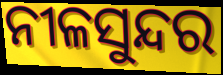
ନୀଳସୁନ୍ଦର